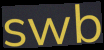
swb